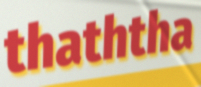
thaththa